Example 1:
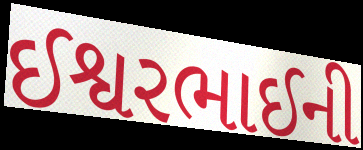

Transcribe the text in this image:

ઈશ્વરભાઈની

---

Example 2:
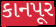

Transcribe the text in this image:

કાનપૂર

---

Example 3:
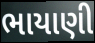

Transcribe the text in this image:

ભાયાણી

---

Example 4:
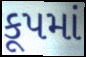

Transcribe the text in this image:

કૂપમાં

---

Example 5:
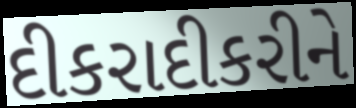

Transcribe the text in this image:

દીકરાદીકરીને